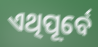
ଏଥିପୂର୍ବେ